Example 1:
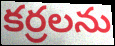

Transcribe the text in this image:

కర్రలను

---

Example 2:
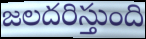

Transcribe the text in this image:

జలదరిస్తుంది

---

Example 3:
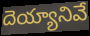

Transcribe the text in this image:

దెయ్యానివే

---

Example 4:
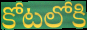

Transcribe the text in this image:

కోటలోకి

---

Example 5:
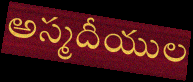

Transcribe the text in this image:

అస్మదీయుల